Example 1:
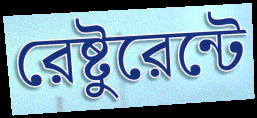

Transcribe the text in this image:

রেষ্টুরেন্টে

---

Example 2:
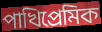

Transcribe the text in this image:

পাখিপ্রেমিক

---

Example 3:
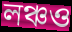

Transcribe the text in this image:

লঞ্চও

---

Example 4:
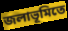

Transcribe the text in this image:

জলাভূমিতে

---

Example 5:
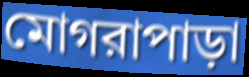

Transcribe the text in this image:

মোগরাপাড়া